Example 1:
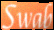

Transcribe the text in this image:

Swab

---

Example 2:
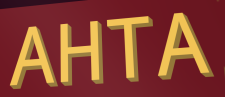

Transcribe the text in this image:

AHTA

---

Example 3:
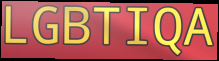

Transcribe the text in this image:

LGBTIQA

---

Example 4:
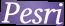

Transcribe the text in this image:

Pesri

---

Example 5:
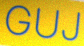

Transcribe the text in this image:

GUJ